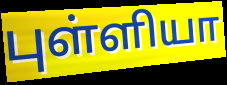
புள்ளியா